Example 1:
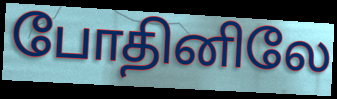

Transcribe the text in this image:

போதினிலே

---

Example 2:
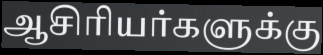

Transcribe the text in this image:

ஆசிரியர்களுக்கு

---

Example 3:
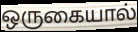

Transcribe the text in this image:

ஒருகையால்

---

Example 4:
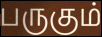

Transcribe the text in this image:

பருகும்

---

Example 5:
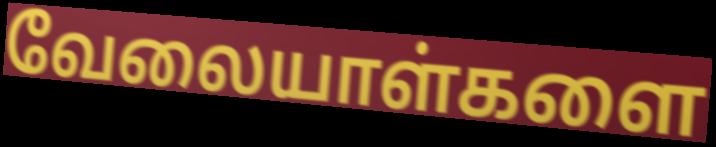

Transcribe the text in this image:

வேலையாள்களை